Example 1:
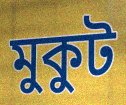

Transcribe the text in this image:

মুকুট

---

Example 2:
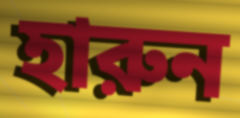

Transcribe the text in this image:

হারুন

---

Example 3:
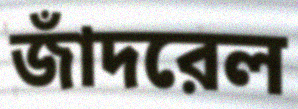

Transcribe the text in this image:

জাঁদরেল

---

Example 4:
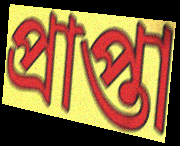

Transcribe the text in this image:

প্রাপ্তা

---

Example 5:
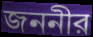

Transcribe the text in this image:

জননীর